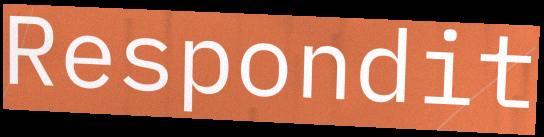
Respondit